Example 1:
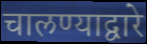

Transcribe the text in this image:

चालण्याद्वारे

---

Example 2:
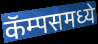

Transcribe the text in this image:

कॅम्पसमध्ये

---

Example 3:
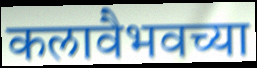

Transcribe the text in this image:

कलावैभवच्या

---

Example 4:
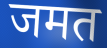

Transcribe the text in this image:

जमत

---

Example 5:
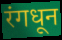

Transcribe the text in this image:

रंगधून